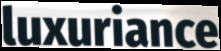
luxuriance